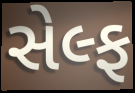
સેલ્ફ